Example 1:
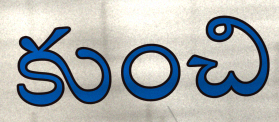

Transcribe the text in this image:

కుంచి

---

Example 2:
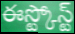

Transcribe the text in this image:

ఈస్ట్కోస్ట్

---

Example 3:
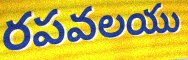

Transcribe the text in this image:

రపవలయు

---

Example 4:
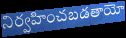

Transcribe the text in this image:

నిర్వహించబడతాయో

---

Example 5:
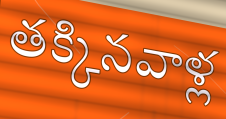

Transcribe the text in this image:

తక్కినవాళ్ల